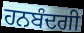
ਹਨਬੰਦਗੀ